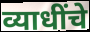
व्याधींचे